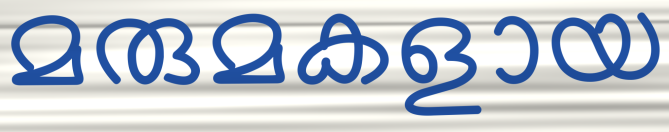
മരുമകളായ